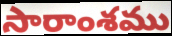
సారాంశము